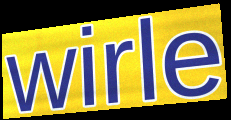
wirle